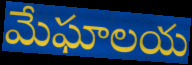
మేఘాలయ